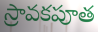
స్రావకపూత